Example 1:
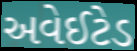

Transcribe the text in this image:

અવેઈટેડ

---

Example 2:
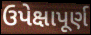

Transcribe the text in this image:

ઉપેક્ષાપૂર્ણ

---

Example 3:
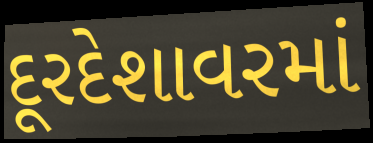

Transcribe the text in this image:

દૂરદેશાવરમાં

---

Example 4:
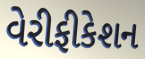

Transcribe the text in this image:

વેરીફીકેશન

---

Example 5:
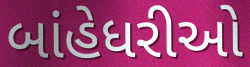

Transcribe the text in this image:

બાંહેધરીઓ